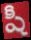
షీ